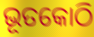
ଭୂତକୋଠି